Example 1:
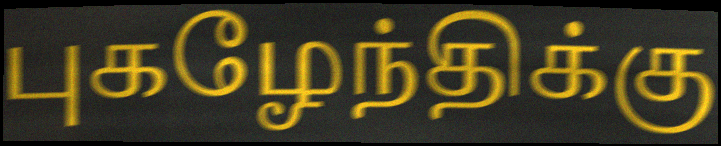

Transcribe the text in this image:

புகழேந்திக்கு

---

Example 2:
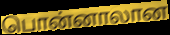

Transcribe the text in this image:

பொன்னாலான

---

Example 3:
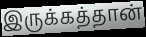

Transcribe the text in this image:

இருக்கத்தான்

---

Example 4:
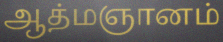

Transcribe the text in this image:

ஆத்மஞானம்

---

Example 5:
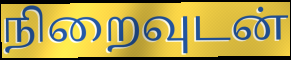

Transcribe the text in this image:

நிறைவுடன்